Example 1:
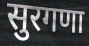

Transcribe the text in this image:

सुरगणा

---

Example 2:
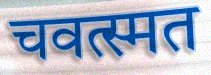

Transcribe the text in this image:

चवत्स्मत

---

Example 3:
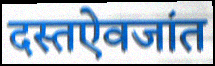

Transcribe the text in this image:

दस्तऐवजांत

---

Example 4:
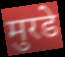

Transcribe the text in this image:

मुरडे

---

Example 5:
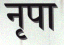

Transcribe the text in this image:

नृपा